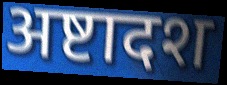
अष्टादश